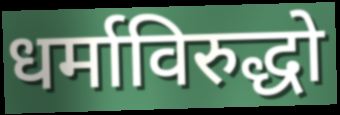
धर्माविरुद्धो